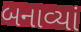
બનાવ્યાં